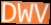
DWV